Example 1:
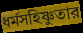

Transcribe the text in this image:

ধর্মসহিষ্ণুতার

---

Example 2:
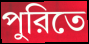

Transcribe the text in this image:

পুরিতে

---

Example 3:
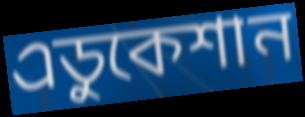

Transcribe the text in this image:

এডুকেশান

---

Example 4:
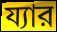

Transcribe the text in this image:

য্যার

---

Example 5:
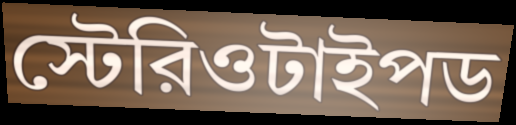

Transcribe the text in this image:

স্টেরিওটাইপড